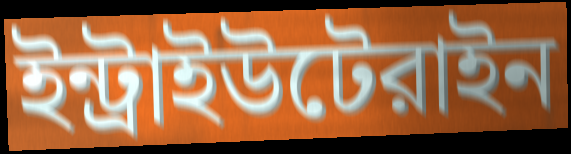
ইন্ট্রাইউটেরাইন